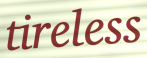
tireless